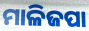
ମାଳିଜପା